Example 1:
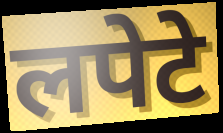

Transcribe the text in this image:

लपेटे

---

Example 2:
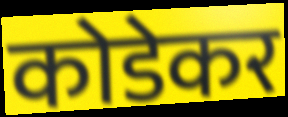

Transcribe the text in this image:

कोडेकर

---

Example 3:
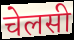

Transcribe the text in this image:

चेलसी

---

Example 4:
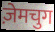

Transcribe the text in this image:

ज़ेमचुग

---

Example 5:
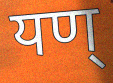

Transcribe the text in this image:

यण्